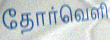
தோர்வெளி